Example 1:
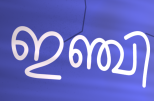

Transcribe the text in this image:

ഇഞ്ചി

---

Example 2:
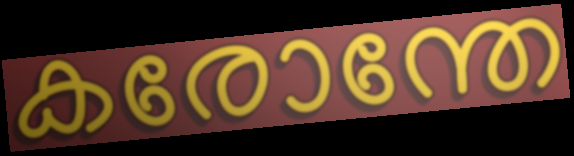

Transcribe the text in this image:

കരോന്തേ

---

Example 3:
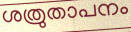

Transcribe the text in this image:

ശത്രുതാപനം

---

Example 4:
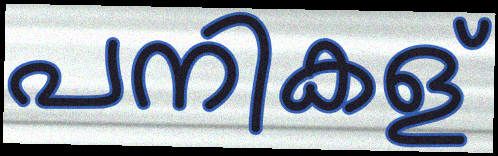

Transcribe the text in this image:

പനികള്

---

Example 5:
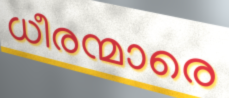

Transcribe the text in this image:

ധീരന്മാരെ